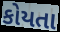
કોયતા